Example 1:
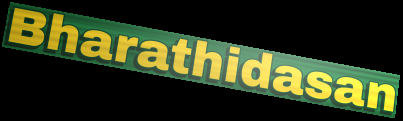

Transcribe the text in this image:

Bharathidasan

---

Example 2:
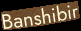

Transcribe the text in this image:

Banshibir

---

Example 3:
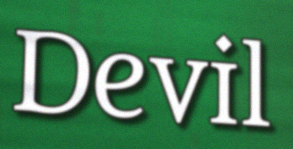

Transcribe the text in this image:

Devil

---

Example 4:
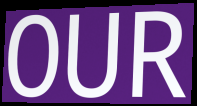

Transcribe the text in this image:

OUR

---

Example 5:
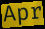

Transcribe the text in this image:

Apr